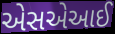
એસએઆઈ